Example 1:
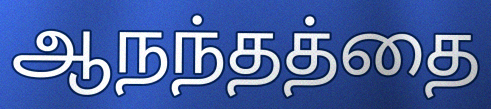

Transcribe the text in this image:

ஆநந்தத்தை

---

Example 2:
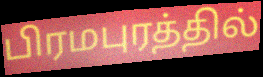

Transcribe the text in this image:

பிரமபுரத்தில்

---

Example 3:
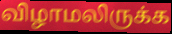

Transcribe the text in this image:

விழாமலிருக்க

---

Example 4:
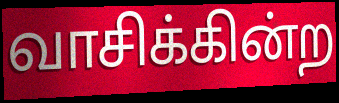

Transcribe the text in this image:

வாசிக்கின்ற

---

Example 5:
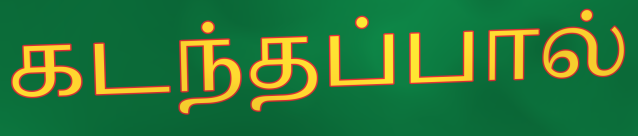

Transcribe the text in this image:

கடந்தப்பால்